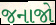
જનાજો